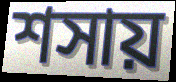
শসায়